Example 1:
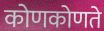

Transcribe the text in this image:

कोणकोणते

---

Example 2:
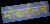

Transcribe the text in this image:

मोबाईलचे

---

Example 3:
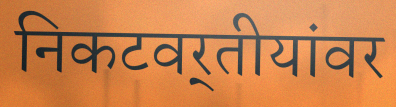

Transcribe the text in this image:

निकटवर्तीयांवर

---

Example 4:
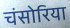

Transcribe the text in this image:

चंसोरिया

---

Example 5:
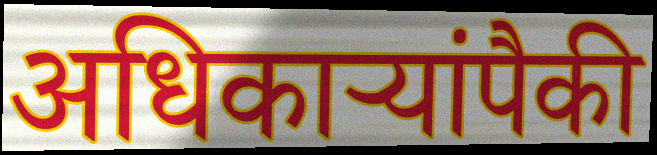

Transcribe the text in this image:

अधिकार्‍यांपैकी